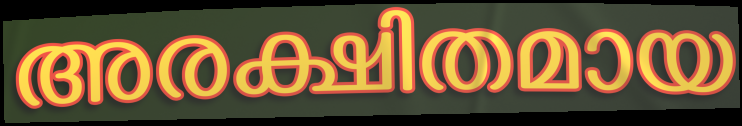
അരക്ഷിതമായ